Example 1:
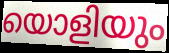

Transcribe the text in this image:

യൊളിയും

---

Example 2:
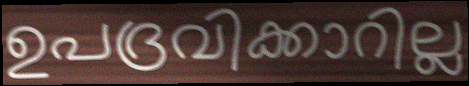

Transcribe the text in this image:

ഉപദ്രവിക്കാറില്ല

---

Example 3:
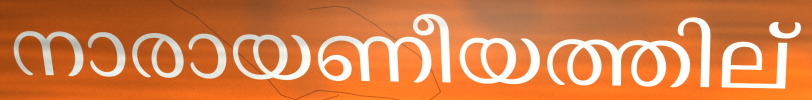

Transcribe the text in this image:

നാരായണീയത്തില്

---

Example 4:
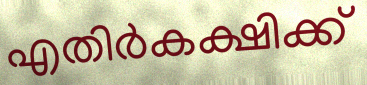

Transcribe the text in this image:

എതിർകക്ഷിക്ക്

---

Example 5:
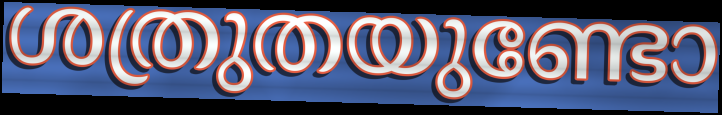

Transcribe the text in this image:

ശത്രുതയുണ്ടോ